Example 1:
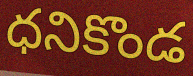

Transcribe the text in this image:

ధనికొండ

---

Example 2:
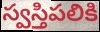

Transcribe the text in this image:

స్వస్తిపలికి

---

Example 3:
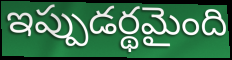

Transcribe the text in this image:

ఇప్పుడర్థమైంది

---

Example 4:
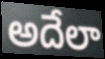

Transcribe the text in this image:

అదేలా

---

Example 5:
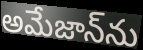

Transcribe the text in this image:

అమేజాన్‌ను